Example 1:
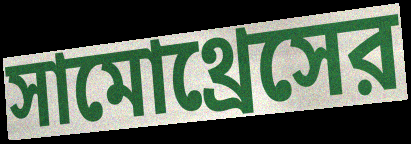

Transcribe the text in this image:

সামোথ্রেসের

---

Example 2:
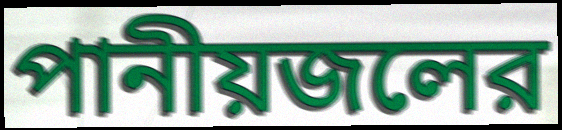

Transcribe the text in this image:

পানীয়জলের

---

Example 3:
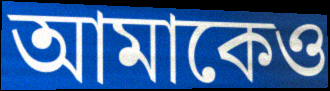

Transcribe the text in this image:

আমাকেও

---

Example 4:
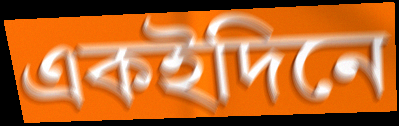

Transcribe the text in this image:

একইদিনে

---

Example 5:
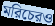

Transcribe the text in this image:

মরিচেরও